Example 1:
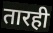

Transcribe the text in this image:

तारही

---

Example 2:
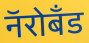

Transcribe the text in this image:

नॅरोबँड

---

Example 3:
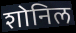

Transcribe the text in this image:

शोनिल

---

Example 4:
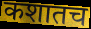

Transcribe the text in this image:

कशातच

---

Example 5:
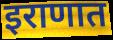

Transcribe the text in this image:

इराणात